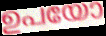
ഉപയോ